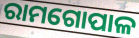
ରାମଗୋପାଳ